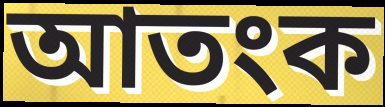
আতংক